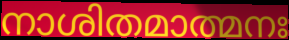
നാശിതമാത്മനഃ